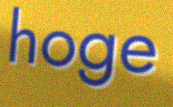
hoge